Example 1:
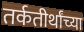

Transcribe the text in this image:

तर्कतीर्थांच्या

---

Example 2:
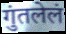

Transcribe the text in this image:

गुंतलेलं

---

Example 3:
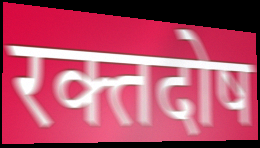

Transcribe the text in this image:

रक्‍तदोष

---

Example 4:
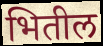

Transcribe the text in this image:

भितील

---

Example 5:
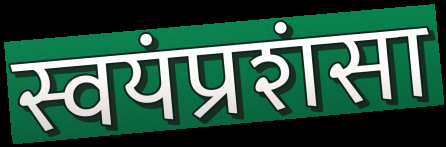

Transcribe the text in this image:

स्वयंप्रशंसा